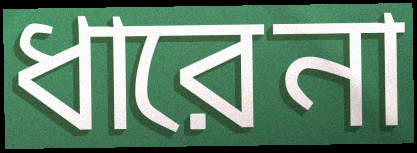
ধারেনা